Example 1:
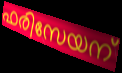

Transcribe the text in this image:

ഫരിസേയന്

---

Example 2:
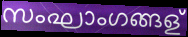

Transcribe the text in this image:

സംഘാംഗങ്ങള്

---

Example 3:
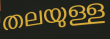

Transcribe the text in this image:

തലയുള്ള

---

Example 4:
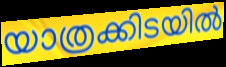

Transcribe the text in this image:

യാത്രക്കിടയിൽ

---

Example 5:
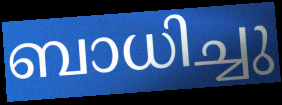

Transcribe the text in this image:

ബാധിച്ചു